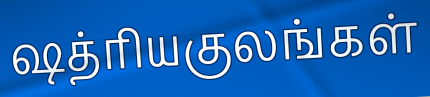
ஷத்ரியகுலங்கள்